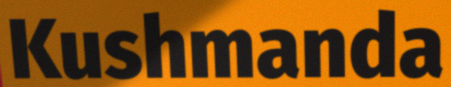
Kushmanda